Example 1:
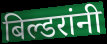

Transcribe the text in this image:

बिल्डरांनी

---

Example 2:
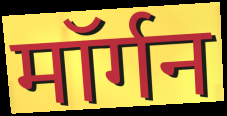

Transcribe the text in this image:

मॉर्गन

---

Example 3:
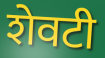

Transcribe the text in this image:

शेवटी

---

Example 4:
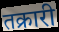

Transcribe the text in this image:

तक्रारी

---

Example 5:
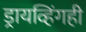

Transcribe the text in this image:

ड्रायव्हिंगही